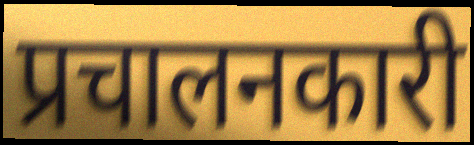
प्रचालनकारी